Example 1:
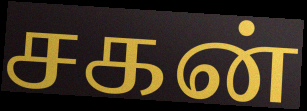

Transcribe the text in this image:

சகன்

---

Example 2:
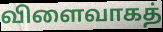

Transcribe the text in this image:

விளைவாகத்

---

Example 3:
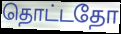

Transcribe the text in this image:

தொட்டதோ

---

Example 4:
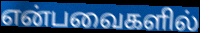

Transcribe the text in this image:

என்பவைகளில்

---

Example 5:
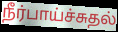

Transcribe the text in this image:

நீர்பாய்ச்சுதல்